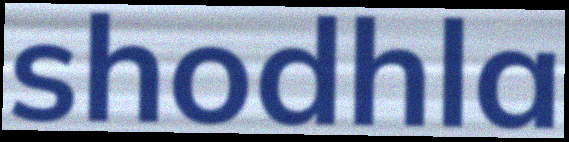
shodhla